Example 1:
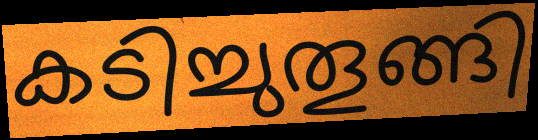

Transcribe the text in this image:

കടിച്ചുതൂങ്ങി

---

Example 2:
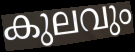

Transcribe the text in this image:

കുലവും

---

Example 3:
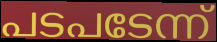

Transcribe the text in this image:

പടപടേന്ന്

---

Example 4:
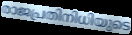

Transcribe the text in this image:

രാജപ്രതിനിധിയുടെ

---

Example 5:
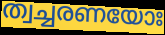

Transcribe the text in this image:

ത്വച്ചരണയോഃ